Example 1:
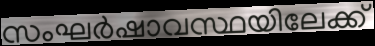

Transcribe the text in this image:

സംഘർഷാവസ്ഥയിലേക്ക്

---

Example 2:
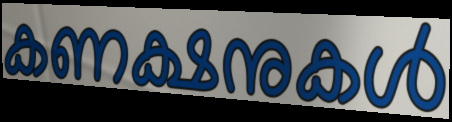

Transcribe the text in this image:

കണക്ഷനുകൾ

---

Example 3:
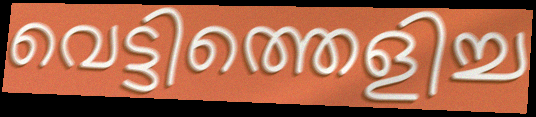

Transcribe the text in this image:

വെട്ടിത്തെളിച്ച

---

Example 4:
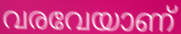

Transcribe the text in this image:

വരവേയാണ്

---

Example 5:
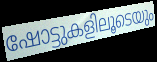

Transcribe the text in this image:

ഷോട്ടുകളിലൂടെയും